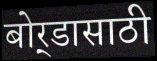
बोर्डासाठी